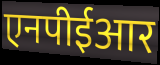
एनपीईआर